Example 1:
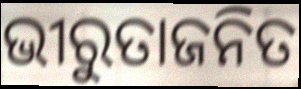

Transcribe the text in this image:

ଭୀରୁତାଜନିତ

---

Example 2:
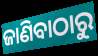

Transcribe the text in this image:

ଜାଣିବାଠାରୁ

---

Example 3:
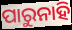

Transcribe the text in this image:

ପାରୁନାହି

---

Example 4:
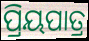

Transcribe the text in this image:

ପ୍ରିୟପାତ୍ର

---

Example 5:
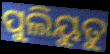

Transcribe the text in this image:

ପୁଲିୟୁତୁ